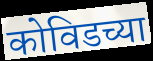
कोविडच्या